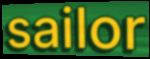
sailor